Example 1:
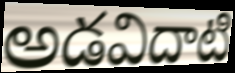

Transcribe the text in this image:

అడవిదాటి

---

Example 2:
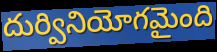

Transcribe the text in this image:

దుర్వినియోగమైంది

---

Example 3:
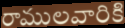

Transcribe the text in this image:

రాములవారికి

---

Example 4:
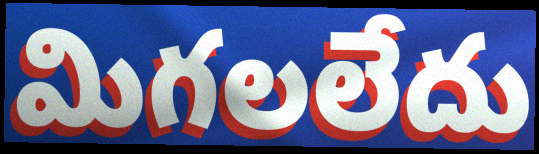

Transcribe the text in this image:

మిగలలేదు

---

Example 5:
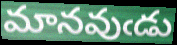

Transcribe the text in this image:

మానవుఁడు